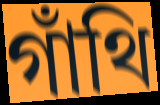
গাঁথি